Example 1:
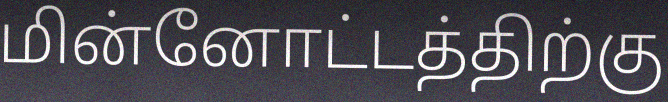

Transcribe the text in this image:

மின்னோட்டத்திற்கு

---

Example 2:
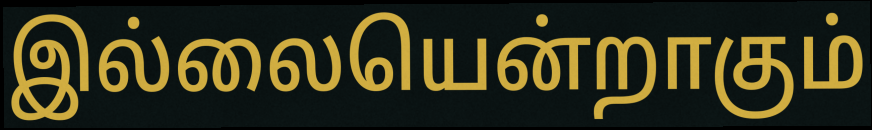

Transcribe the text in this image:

இல்லையென்றாகும்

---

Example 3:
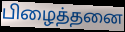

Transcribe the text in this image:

பிழைத்தனை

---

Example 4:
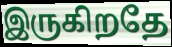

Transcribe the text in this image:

இருகிறதே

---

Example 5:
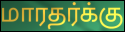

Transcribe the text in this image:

மாரதர்க்கு